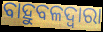
ବାହୁବଳଦ୍ୱାରା